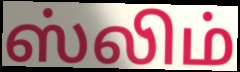
ஸ்லிம்